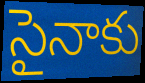
సైనాకు